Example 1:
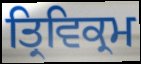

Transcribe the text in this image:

ਤ੍ਰਿਵਿਕ੍ਰਮ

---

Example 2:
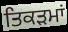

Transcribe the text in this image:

ਤਿਕੜਮਾਂ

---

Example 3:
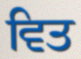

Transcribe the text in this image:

ਵਿਤ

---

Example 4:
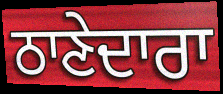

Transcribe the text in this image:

ਠਾਣੇਦਾਰਾ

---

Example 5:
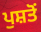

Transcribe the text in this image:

ਪੁਸ਼ਤੋਂ